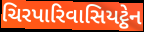
ચિરપારિવાસિયટ્ઠેન